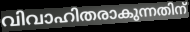
വിവാഹിതരാകുന്നതിന്